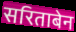
सरिताबेन